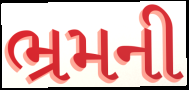
ભ્રમની